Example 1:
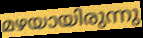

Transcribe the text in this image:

മഴയായിരുന്നു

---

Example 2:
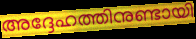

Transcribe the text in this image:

അദ്ദേഹത്തിനുണ്ടായി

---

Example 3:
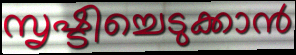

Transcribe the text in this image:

സൃഷ്ടിച്ചെടുക്കാൻ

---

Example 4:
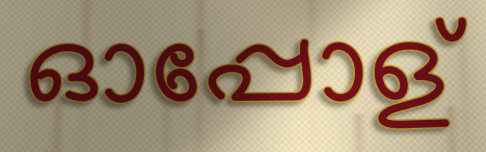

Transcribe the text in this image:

ഓപ്പോള്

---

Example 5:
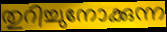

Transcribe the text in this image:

തുറിച്ചുനോക്കുന്ന